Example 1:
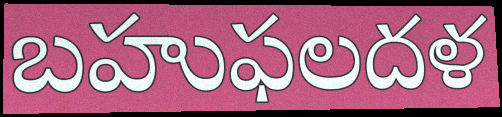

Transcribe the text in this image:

బహుఫలదళ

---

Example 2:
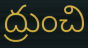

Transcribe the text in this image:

ద్రుంచి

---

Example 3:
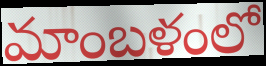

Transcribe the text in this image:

మాంబళంలో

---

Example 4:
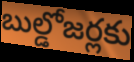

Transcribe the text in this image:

బుల్డోజర్లకు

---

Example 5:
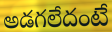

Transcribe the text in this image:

అడగలేదంటే